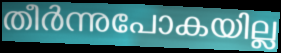
തീർന്നുപോകയില്ല